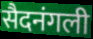
सैदनंगली